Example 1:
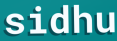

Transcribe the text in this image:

sidhu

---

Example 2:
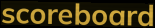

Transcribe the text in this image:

scoreboard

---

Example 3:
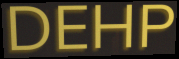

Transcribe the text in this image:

DEHP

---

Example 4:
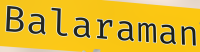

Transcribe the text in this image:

Balaraman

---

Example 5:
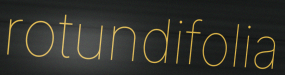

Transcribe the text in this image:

rotundifolia